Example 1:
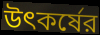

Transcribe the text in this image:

উৎকর্ষের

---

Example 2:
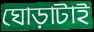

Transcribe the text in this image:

ঘোড়াটাই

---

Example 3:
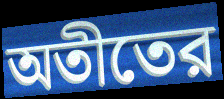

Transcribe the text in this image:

অতীতের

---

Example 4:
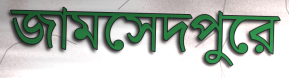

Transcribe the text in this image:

জামসেদপুরে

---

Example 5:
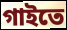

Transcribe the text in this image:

গাইতে